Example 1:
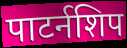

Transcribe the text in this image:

पाटर्नशिप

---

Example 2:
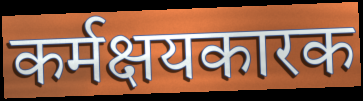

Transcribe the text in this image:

कर्मक्षयकारक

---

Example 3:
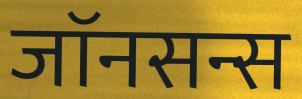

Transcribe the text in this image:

जॉनसन्स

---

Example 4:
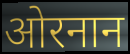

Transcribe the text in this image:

ओरनान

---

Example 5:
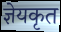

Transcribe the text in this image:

ज्ञेयकृत